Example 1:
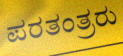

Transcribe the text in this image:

ಪರತಂತ್ರರು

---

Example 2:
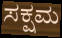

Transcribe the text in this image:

ಸಕ್ಷಮ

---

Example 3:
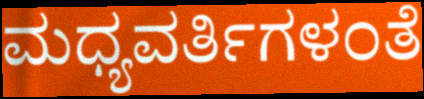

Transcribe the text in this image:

ಮಧ್ಯವರ್ತಿಗಳಂತೆ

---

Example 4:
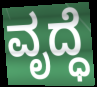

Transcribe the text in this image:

ವೃದ್ಧೆ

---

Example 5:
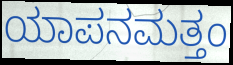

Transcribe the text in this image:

ಯಾಪನಮತ್ತಂ